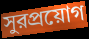
সুরপ্রয়োগ